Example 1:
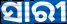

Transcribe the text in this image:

ସାରୀ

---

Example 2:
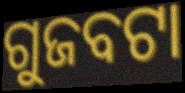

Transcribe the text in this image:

ଗୁଜବଟା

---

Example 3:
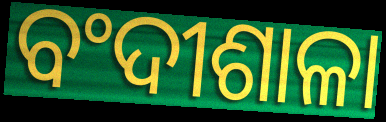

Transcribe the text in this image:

ବଂଦୀଶାଳା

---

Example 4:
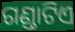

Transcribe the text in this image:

ଗଣ୍ଡାଟିଏ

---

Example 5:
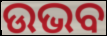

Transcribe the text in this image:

ଉଭବ